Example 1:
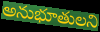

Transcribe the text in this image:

అనుభూతులని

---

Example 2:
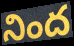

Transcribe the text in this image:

నింద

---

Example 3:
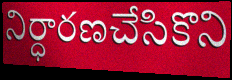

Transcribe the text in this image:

నిర్ధారణచేసికొని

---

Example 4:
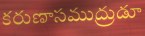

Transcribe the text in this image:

కరుణాసముద్రుడూ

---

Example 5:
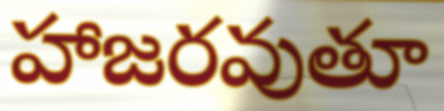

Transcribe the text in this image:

హాజరవుతూ